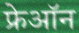
फ्रेऑन